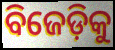
ବିଜେଡ଼ିକୁ